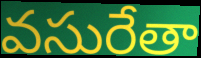
వసురేతా